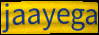
jaayega